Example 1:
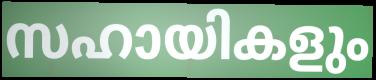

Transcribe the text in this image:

സഹായികളും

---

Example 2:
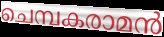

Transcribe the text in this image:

ചെമ്പകരാമൻ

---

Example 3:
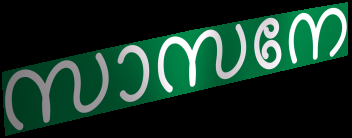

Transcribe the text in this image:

സാസനേ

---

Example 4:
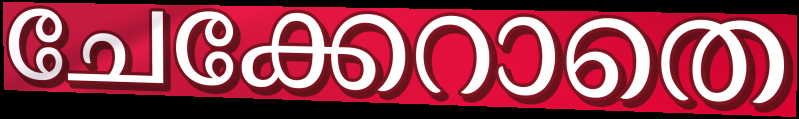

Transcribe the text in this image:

ചേക്കേറാതെ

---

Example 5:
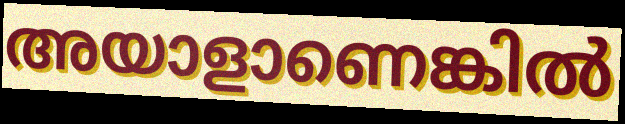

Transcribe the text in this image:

അയാളാണെങ്കിൽ